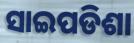
ସାଇପଡିଶା